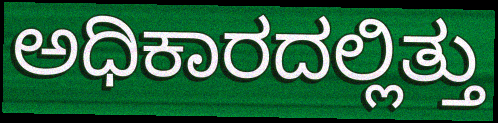
ಅಧಿಕಾರದಲ್ಲಿತ್ತು